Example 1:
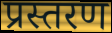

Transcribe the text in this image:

प्रस्तरण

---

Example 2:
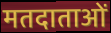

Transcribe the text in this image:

मतदाताओें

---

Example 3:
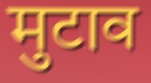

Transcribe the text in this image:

मुटाव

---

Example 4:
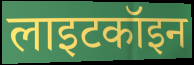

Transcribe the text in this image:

लाइटकॉइन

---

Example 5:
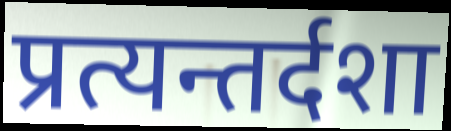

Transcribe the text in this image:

प्रत्यन्तर्दशा